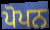
ਪੋਪਨ